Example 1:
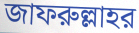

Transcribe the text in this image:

জাফরুল্লাহর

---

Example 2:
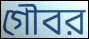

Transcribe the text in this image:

গৌবর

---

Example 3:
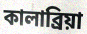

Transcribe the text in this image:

কালাব্রিয়া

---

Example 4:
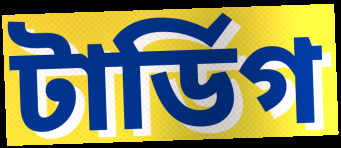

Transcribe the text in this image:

টার্ডিগ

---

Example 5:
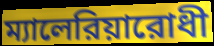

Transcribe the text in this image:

ম্যালেরিয়ারোধী